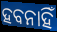
ହବନାହିଁ